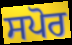
ਸਪੋਰ